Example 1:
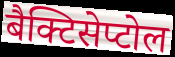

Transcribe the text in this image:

बैक्टिसेप्टोल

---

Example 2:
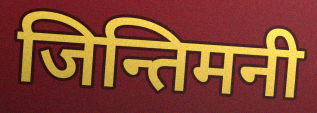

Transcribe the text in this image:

जिन्तिमनी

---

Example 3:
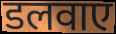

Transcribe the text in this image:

डलवाए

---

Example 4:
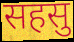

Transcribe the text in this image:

सहसु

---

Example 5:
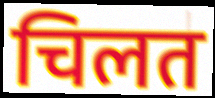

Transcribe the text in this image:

चिलत